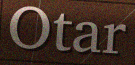
Otar